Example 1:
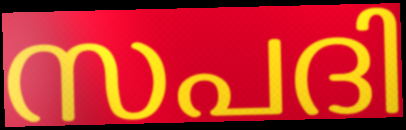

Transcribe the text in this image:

സപദി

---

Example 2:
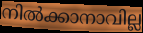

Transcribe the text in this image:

നിൽക്കാനാവില്ല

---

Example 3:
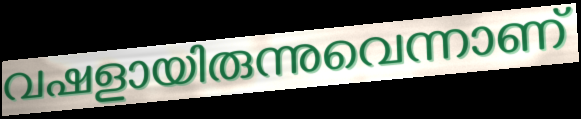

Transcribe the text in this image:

വഷളായിരുന്നുവെന്നാണ്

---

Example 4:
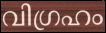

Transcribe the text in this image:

വിഗ്രഹം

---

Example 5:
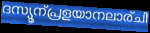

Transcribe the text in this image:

ദസ്യൂന്പ്രളയാനലാര്ചി